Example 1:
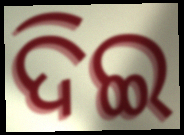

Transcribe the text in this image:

ଦିଇ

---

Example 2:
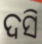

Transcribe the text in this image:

ଦସି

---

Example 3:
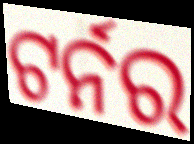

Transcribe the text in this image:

ଟର୍ନର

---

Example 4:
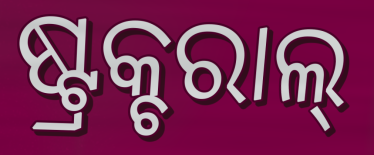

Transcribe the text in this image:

ଷ୍ଟ୍ରକ୍ଚରାଲ୍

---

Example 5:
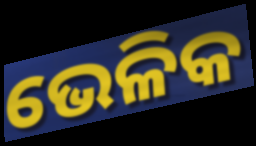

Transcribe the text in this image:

ଭେଳିକ